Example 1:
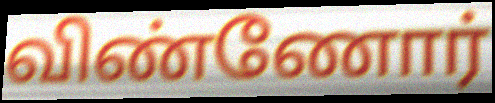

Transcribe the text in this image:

விண்ணோர்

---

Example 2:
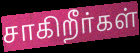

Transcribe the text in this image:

சாகிறீர்கள்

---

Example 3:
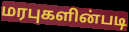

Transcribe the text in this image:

மரபுகளின்படி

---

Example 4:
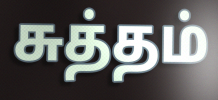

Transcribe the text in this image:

சுத்தம்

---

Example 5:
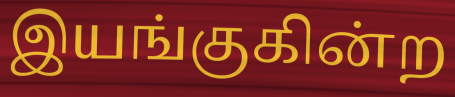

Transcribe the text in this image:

இயங்குகின்ற